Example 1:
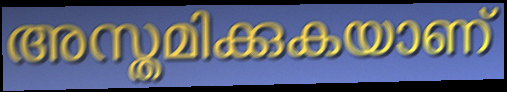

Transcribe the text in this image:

അസ്തമിക്കുകയാണ്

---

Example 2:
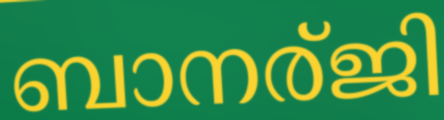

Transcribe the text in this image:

ബാനര്ജി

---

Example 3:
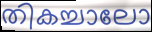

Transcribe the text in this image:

തികച്ചാലോ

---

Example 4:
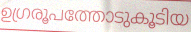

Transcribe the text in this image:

ഉഗ്രരൂപത്തോടുകൂടിയ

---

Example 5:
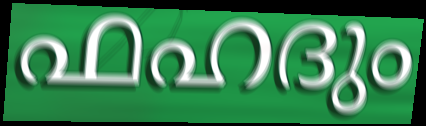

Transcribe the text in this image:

ഫഹദും